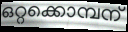
ഒറ്റക്കൊമ്പന്